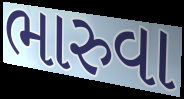
ભારુવા